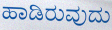
ಹಾಡಿರುವುದು